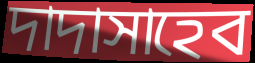
দাদাসাহেব